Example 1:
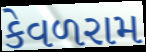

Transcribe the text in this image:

કેવળરામ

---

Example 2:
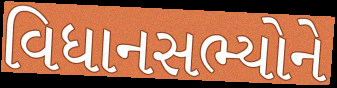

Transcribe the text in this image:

વિધાનસભ્યોને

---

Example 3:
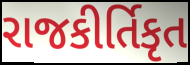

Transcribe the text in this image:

રાજકીર્તિકૃત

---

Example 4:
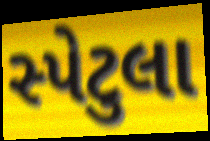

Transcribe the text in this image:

સ્પેટુલા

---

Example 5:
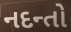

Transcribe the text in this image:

નદન્તો